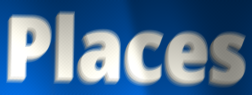
Places